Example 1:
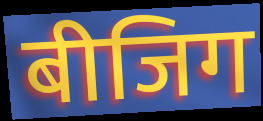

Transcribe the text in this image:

बीजिग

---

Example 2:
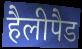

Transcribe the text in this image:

हैलीपैड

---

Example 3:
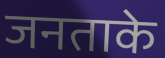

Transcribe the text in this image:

जनताके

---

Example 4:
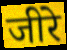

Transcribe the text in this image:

जीरे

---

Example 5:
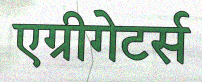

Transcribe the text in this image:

एग्रीगेटर्स